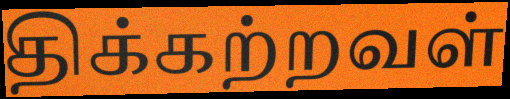
திக்கற்றவள்